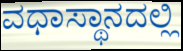
ವಧಾಸ್ಥಾನದಲ್ಲಿ